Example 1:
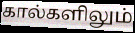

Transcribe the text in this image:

கால்களிலும்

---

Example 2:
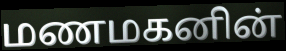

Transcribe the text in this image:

மணமகனின்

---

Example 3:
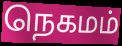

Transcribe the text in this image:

நெகமம்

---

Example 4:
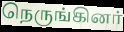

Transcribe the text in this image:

நெருங்கினர்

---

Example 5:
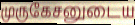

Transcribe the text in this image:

முருகேசனுடைய